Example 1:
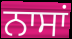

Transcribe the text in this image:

ਨਾਸਾਂ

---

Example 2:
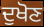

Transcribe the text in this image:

ਦੁਖੋਣ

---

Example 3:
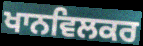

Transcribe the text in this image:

ਖਾਨਵਿਲਕਰ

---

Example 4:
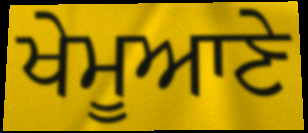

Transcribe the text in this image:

ਖੇਮੂਆਣੇ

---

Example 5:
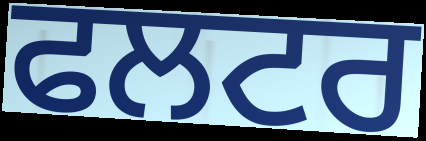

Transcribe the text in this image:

ਫਲਟਰ